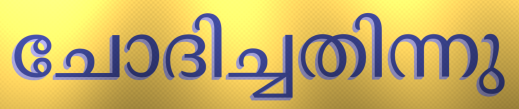
ചോദിച്ചതിന്നു